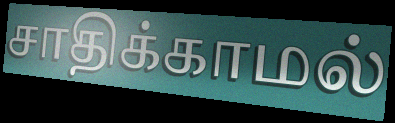
சாதிக்காமல்